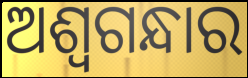
ଅଶ୍ୱଗନ୍ଧାର